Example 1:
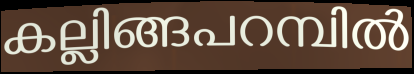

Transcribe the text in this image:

കല്ലിങ്ങപറമ്പിൽ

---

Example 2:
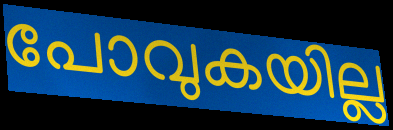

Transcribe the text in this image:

പോവുകയില്ല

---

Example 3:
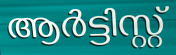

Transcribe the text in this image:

ആർട്ടിസ്റ്റ്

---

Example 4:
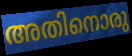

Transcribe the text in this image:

അതിനൊരു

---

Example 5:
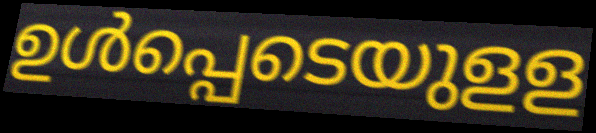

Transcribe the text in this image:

ഉൾപ്പെടെയുളള